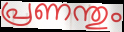
പ്രണന്തും